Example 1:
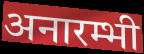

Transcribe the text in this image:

अनारम्भी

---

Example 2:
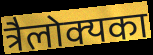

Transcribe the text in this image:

त्रैलोक्यका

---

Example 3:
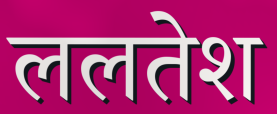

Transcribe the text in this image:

ललतेश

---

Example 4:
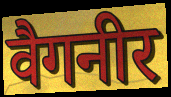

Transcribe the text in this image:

वैगनीर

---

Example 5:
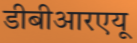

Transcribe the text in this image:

डीबीआरएयू